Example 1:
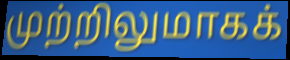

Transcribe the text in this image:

முற்றிலுமாகக்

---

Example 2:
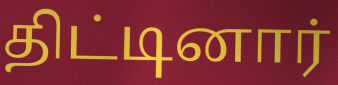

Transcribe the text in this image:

திட்டினார்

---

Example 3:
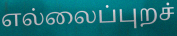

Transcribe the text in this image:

எல்லைப்புறச்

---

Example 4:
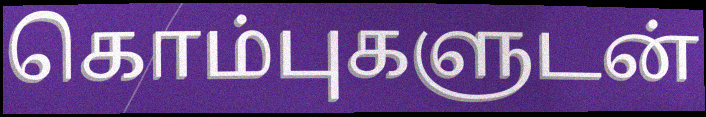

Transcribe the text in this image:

கொம்புகளுடன்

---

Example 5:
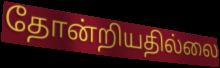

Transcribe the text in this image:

தோன்றியதில்லை